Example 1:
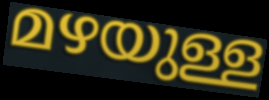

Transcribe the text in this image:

മഴയുള്ള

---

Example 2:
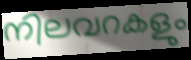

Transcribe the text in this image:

നിലവറകളും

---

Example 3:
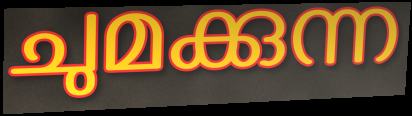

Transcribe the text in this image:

ചുമക്കുന്ന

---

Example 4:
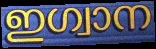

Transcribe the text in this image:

ഇഗ്വാന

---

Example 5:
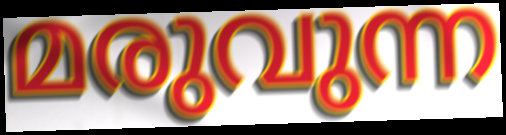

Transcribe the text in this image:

മരുവുന്ന